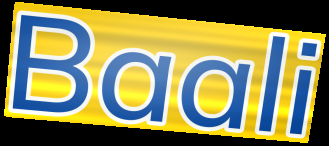
Baali